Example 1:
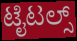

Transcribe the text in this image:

ಟೈಟಲ್ಸ್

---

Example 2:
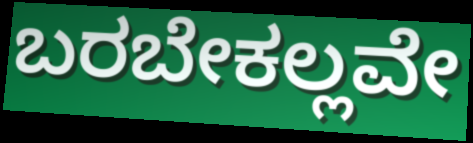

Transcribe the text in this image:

ಬರಬೇಕಲ್ಲವೇ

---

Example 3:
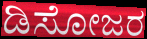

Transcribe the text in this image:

ಡಿಸೋಜರ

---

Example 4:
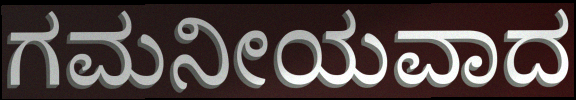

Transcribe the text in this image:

ಗಮನೀಯವಾದ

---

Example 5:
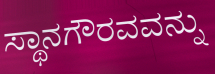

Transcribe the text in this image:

ಸ್ಥಾನಗೌರವವನ್ನು